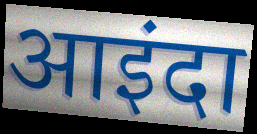
आइंदा